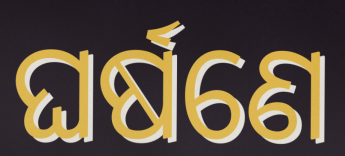
ଘର୍ଷଣେ